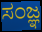
ಸಂಜ್ಞ